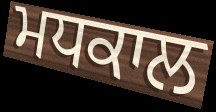
ਮਧਕਾਲ